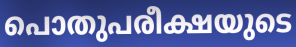
പൊതുപരീക്ഷയുടെ